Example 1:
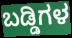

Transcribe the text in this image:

ಬಡ್ಡಿಗಳ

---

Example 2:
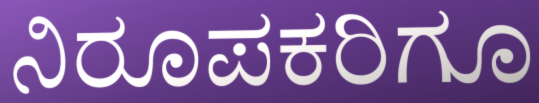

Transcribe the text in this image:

ನಿರೂಪಕರಿಗೂ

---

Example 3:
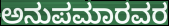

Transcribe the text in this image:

ಅನುಪಮಾರವರ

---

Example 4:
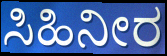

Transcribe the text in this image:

ಸಿಹಿನೀರ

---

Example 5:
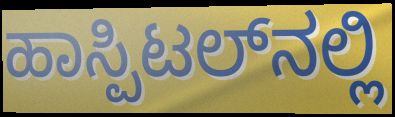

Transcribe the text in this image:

ಹಾಸ್ಪಿಟಲ್‌ನಲ್ಲಿ